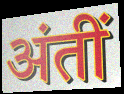
अंतीं